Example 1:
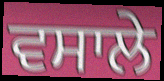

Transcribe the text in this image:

ਵਸਾਲੇ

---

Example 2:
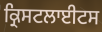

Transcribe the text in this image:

ਕ੍ਰਿਸਟਲਾਈਟਸ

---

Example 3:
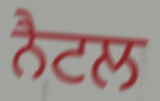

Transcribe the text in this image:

ਨੈਟਲ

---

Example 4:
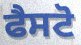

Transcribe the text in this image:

ਫੈਸਟੋ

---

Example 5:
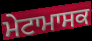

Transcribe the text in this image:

ਮੇਟਾਮਾਸਕ